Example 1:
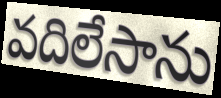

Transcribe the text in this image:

వదిలేసాను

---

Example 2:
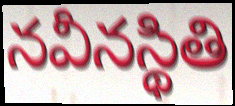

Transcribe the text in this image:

నవీనస్థితి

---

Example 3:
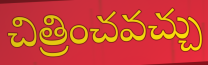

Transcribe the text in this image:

చిత్రించవచ్చు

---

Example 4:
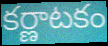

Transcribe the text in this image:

కర్ణాటకం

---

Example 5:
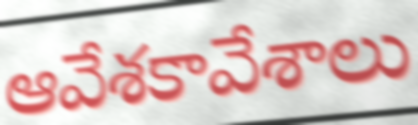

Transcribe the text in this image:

ఆవేశకావేశాలు